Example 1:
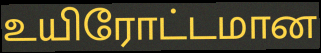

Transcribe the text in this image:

உயிரோட்டமான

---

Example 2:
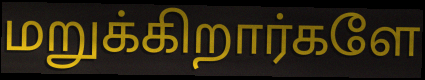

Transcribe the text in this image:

மறுக்கிறார்களே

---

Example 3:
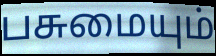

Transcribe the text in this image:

பசுமையும்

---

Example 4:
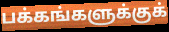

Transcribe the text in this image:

பக்கங்களுக்குக்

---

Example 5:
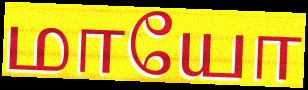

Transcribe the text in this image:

மாயோ